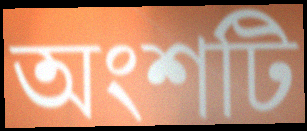
অংশটি